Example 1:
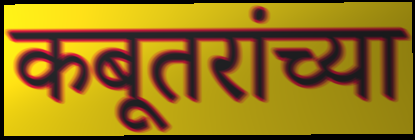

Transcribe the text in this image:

कबूतरांच्या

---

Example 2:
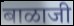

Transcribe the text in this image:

बाळाजी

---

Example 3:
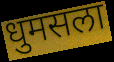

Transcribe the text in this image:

धुमसला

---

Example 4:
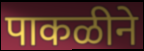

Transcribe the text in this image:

पाकळीने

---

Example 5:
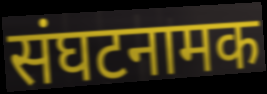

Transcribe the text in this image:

संघटनामक